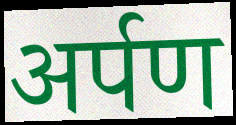
अर्पण